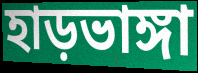
হাড়ভাঙ্গা